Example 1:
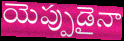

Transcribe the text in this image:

యెప్పుడైనా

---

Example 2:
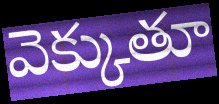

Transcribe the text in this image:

వెక్కుతూ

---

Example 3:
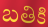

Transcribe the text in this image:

బతికి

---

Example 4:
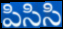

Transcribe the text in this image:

పిసిసి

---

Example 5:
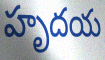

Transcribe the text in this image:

హృదయ